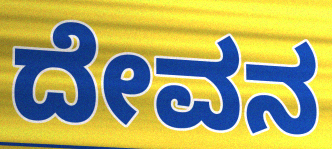
ದೇವನ